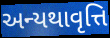
અન્યથાવૃત્તિ